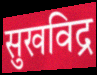
सुखविद्र